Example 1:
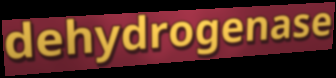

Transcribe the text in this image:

dehydrogenase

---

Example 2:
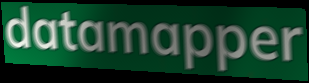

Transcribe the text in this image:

datamapper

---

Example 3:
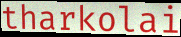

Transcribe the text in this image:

tharkolai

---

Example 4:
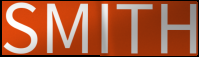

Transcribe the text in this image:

SMITH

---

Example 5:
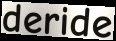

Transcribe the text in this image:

deride